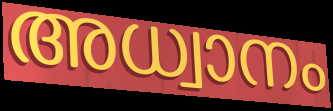
അധ്വാനം